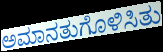
ಅಮಾನತುಗೊಳಿಸಿತು